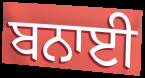
ਬਨਾਈ